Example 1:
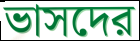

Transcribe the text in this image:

ভাসদের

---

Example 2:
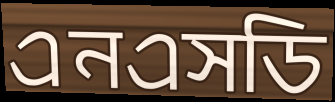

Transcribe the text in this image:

এনএসডি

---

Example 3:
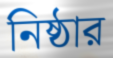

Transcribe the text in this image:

নিষ্ঠার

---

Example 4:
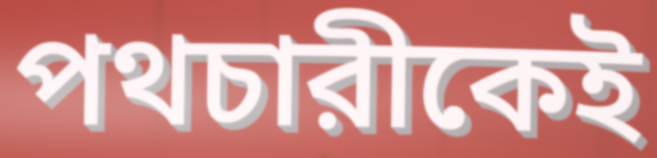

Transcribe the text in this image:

পথচারীকেই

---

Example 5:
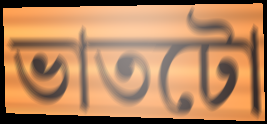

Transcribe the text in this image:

ভাতটো